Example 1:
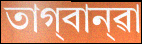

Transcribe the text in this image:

তাগ্‌বান্‌ৱা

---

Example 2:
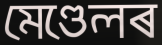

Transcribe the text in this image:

মেণ্ডেলৰ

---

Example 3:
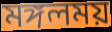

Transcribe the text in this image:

মঙ্গলময়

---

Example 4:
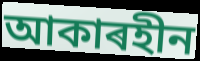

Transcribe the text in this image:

আকাৰহীন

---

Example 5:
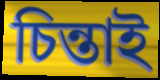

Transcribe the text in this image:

চিন্তাই